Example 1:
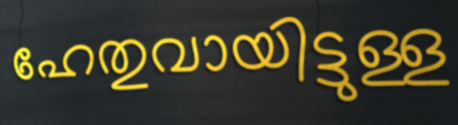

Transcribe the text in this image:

ഹേതുവായിട്ടുള്ള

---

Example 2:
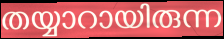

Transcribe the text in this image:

തയ്യാറായിരുന്ന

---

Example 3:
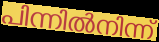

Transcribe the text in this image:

പിന്നിൽനിന്ന്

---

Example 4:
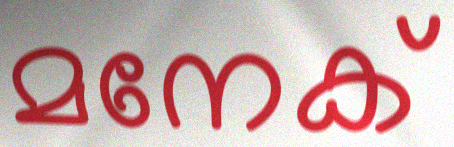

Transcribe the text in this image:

മനേക്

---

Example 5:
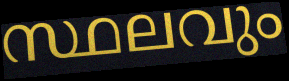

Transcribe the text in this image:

സ്ഥലവും